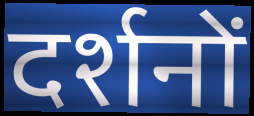
दर्शनों